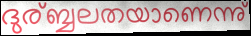
ദുര്ബ്ബലതയാണെന്നു്